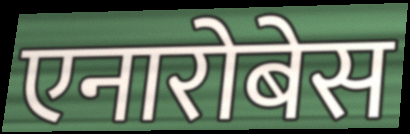
एनारोबेस